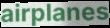
airplanes